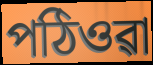
পঠিওৱা